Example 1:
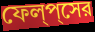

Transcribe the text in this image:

ফেল্‌প্‌সের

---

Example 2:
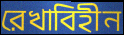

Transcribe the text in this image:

রেখাবিহীন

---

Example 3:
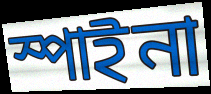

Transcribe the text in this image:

স্পাইনা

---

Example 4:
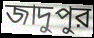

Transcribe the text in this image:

জাদুপুর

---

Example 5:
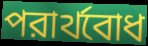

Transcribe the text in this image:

পরার্থবোধ